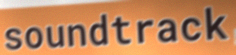
soundtrack